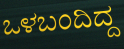
ಒಳಬಂದಿದ್ದ